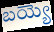
బయ్యె